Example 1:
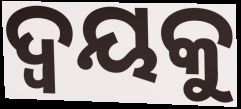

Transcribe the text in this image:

ଦ୍ୱୟକୁ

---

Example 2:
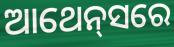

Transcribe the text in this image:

ଆଥେନ୍‍ସରେ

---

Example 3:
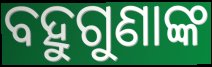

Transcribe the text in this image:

ବହୁଗୁଣାଙ୍କ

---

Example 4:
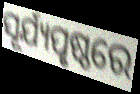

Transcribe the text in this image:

ସୂର୍ଯ୍ୟପୃଷ୍ଠରେ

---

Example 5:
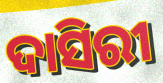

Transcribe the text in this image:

ଦାସିରୀ